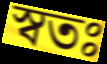
স্বতঃ